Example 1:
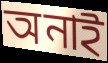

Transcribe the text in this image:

অনাই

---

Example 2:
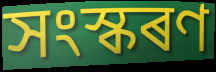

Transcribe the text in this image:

সংস্কৰণ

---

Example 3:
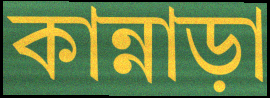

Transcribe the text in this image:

কান্নাড়া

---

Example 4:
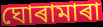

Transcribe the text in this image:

ঘোৰামাৰা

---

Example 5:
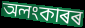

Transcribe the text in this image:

অলংকাৰৰ